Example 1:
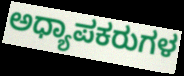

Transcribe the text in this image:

ಅಧ್ಯಾಪಕರುಗಳ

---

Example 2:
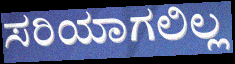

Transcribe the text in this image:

ಸರಿಯಾಗಲಿಲ್ಲ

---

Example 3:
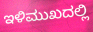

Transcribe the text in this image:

ಇಳಿಮುಖದಲ್ಲಿ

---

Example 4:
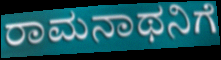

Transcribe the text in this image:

ರಾಮನಾಥನಿಗೆ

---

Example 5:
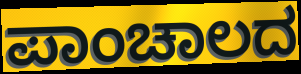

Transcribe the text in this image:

ಪಾಂಚಾಲದ